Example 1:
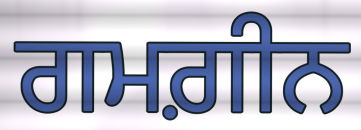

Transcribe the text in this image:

ਗਮਗ਼ੀਨ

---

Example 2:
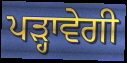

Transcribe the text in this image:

ਪੜ੍ਹਾਵੇਗੀ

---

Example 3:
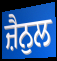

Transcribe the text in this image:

ਜ਼ੈਨੁਲ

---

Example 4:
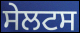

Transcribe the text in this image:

ਸੇਲਟਸ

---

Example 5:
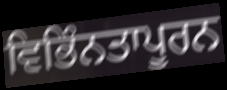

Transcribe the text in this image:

ਵਿਭਿੰਨਤਾਪੂਰਨ